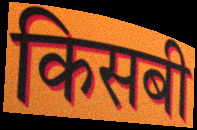
किसबी